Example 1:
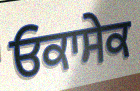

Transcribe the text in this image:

ਓਕਾਸੇਕ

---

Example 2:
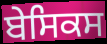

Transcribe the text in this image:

ਬੇਸਿਕਸ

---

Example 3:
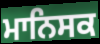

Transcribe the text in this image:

ਮਾਨਿਸਕ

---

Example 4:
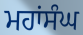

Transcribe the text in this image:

ਮਹਾਂਸੰਘ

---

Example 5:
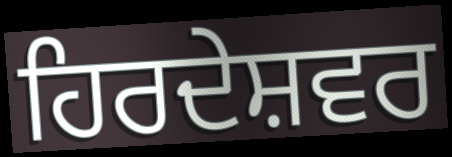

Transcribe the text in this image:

ਹਿਰਦੇਸ਼ਵਰ